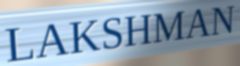
LAKSHMAN